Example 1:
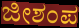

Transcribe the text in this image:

ಜೀಶಂಪ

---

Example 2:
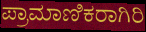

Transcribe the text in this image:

ಪ್ರಾಮಾಣಿಕರಾಗಿರಿ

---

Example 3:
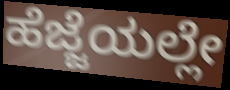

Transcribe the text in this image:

ಹೆಜ್ಜೆಯಲ್ಲೇ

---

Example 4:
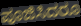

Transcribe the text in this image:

ಪೂಜಿಸಿದರೂ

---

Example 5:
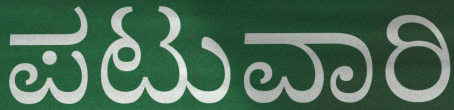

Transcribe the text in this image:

ಪಟುವಾರಿ